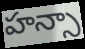
హన్సా